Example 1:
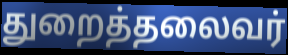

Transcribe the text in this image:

துறைத்தலைவர்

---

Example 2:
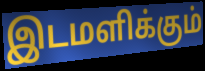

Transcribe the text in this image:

இடமளிக்கும்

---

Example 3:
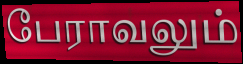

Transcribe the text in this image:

பேராவலும்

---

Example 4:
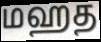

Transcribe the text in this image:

மஹத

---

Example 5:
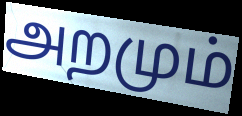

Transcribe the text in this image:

அறமும்